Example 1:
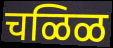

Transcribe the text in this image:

चळिळ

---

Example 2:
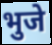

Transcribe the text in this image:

भुजे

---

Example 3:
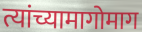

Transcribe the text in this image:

त्यांच्यामागोमाग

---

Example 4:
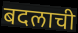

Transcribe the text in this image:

बदलाची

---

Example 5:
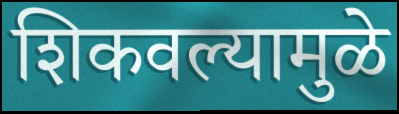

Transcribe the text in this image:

शिकवल्यामुळे